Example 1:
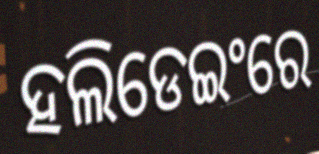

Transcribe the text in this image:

ହଲିଡେଇଂରେ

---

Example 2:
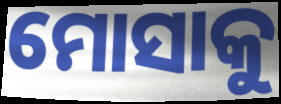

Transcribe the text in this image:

ମୋସାକୁ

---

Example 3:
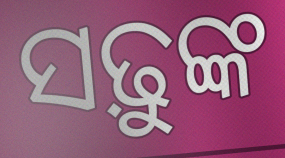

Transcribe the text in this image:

ସଢ଼ୁଙ୍କ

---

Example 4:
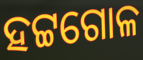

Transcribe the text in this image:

ହଟ୍ଟଗୋଳ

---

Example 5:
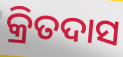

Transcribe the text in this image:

କ୍ରିତଦାସ